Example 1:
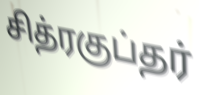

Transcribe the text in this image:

சித்ரகுப்தர்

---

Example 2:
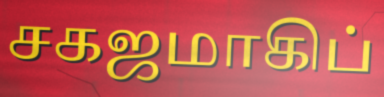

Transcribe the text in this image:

சகஜமாகிப்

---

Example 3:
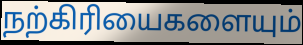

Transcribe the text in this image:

நற்கிரியைகளையும்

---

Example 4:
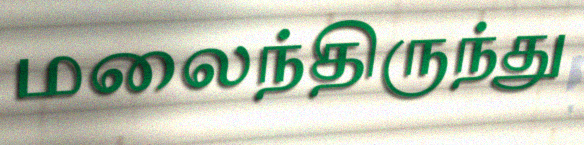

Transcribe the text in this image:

மலைந்திருந்து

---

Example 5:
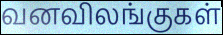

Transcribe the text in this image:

வனவிலங்குகள்